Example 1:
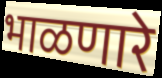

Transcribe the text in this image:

भाळणारे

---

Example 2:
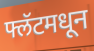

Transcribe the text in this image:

फ्लॅटमधून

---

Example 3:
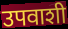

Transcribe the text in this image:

उपवाशी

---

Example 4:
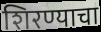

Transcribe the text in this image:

शिरण्याचा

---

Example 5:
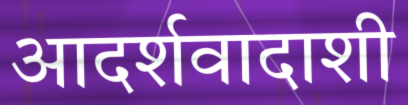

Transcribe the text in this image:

आदर्शवादाशी